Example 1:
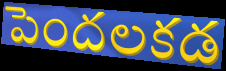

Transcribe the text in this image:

పెందలకడ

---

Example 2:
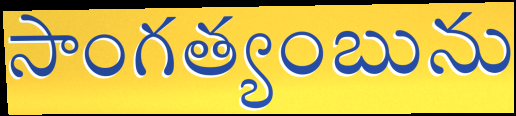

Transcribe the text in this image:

సాంగత్యంబును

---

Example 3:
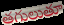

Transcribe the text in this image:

తగులుతూ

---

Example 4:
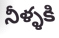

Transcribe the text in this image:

నీళ్ళకి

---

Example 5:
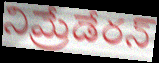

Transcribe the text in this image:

నిమ్రేడేరన్